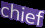
chief